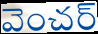
వెంచర్